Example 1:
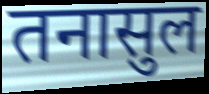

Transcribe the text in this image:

तनासुल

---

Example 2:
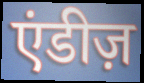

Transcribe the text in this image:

एंडीज़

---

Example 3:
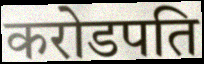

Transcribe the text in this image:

करोडपति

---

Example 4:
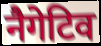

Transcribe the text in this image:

नैगेटिव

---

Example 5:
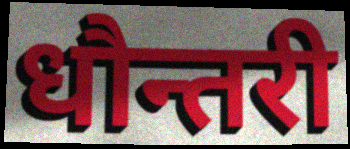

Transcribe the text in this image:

धौन्तरी